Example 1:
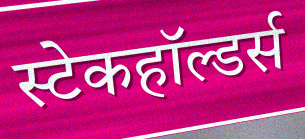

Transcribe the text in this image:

स्टेकहॉल्डर्स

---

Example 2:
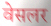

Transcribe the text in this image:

वेसलर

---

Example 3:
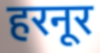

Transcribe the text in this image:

हरनूर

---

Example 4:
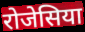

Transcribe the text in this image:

रोजेसिया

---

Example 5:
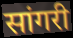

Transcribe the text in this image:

सांगरी